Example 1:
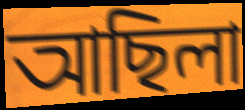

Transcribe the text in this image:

আছিলা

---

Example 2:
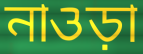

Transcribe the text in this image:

নাওড়া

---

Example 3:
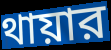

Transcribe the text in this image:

থায়ার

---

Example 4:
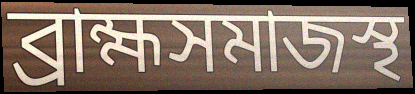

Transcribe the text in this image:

ব্রাহ্মসমাজস্থ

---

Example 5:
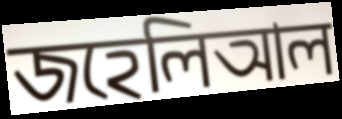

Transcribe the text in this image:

জহেলিআল